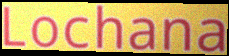
Lochana